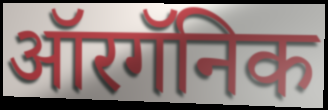
ऑरगॅनिक